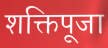
शक्तिपूजा